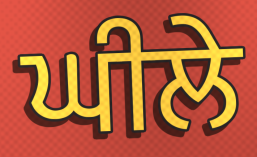
ਘੀਲੇ